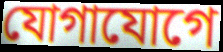
যোগাযোগে